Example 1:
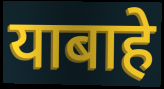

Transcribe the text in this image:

याबाहे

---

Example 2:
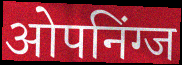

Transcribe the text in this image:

ओपनिंग्ज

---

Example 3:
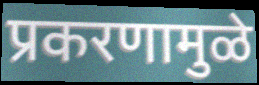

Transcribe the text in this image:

प्रकरणामुळे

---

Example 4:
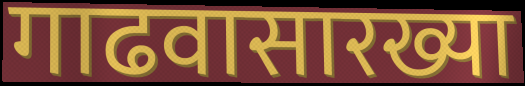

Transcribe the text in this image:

गाढवासारख्या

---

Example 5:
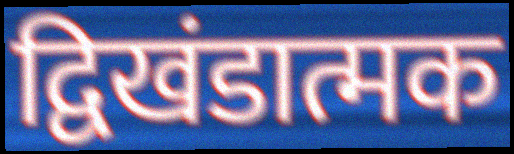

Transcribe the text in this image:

द्विखंडात्मक